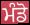
ਮੰਡੋ